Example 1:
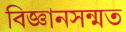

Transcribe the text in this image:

বিজ্ঞানসন্মত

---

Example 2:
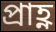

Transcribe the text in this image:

প্ৰাহ্ণ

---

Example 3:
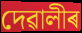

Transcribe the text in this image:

দেৱালীৰ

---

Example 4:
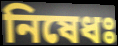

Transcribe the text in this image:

নিষেধঃ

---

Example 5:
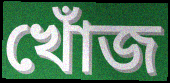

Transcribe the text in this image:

খোঁজ